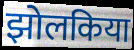
झोलकिया